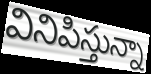
వినిపిస్తున్నా